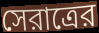
সেরাত্রের